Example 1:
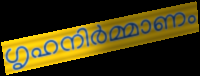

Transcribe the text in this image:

ഗൃഹനിർമ്മാണം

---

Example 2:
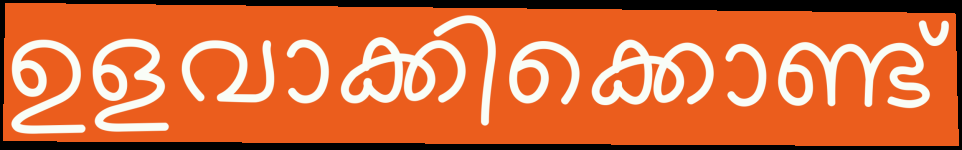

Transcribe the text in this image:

ഉളവാക്കിക്കൊണ്ട്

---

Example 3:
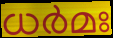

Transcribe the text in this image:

ധർമഃ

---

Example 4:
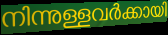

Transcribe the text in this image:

നിന്നുള്ളവർക്കായി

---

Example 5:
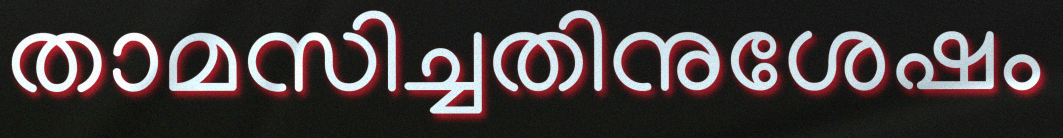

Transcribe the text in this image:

താമസിച്ചതിനുശേഷം